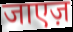
जाएज़